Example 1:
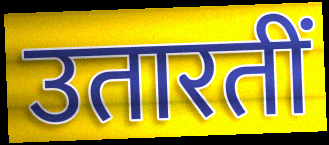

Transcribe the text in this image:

उतारतीं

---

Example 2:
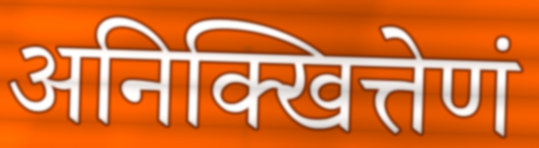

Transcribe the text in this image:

अनिक्खित्तेणं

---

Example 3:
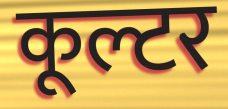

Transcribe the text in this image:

कूल्‍टर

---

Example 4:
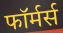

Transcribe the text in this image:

फॉर्मर्स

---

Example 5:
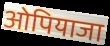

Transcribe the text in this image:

ओपियाजा